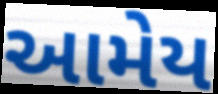
આમેય